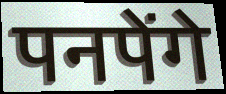
पनपेंगे